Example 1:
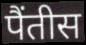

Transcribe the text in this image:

पैंतीस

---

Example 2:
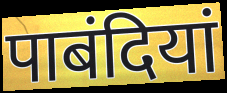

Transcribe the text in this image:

पाबंदियां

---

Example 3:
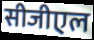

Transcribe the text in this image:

सीजीएल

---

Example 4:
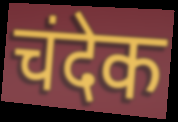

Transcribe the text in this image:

चंदेक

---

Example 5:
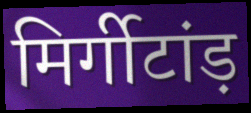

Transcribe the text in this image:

मिर्गीटांड़